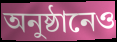
অনুষ্ঠানেও